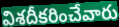
విశదీకరించేవారు